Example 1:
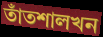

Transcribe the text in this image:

তাঁতশালখন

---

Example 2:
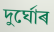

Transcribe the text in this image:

দুৰ্ঘোৰ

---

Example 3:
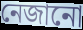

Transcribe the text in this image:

নেজানো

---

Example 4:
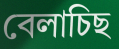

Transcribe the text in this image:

বেলাচিছ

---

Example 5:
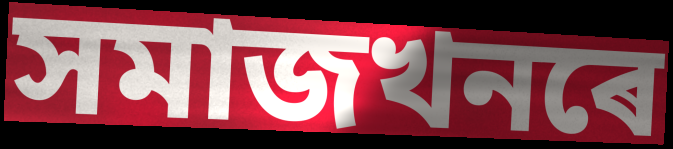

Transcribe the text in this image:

সমাজখনৰে